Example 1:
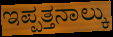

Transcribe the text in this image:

ಇಪ್ಪತ್ತನಾಲ್ಕು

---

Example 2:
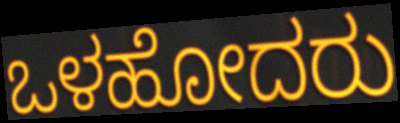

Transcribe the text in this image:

ಒಳಹೋದರು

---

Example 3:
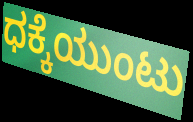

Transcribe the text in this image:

ಧಕ್ಕೆಯುಂಟು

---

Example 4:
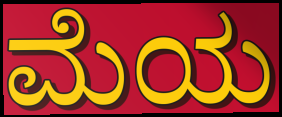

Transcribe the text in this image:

ಮೆಯ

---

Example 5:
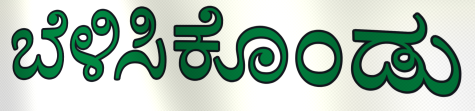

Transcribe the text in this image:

ಬೆಳಿಸಿಕೊಂಡು